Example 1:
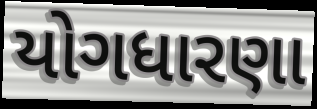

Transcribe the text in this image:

યોગધારણા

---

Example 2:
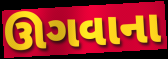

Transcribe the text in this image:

ઊગવાના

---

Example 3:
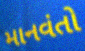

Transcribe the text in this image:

માનવંતો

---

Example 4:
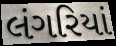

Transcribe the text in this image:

લંગરિયાં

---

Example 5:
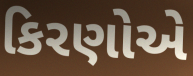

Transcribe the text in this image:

કિરણોએ